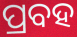
ପ୍ରବହ